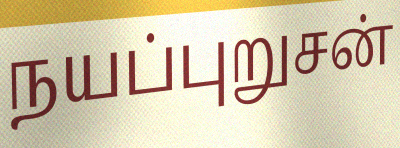
நயப்புறுசன்